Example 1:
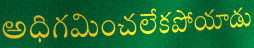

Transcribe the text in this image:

అధిగమించలేకపోయాడు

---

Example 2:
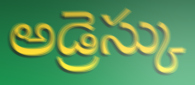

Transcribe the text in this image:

అడ్రెస్కు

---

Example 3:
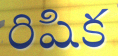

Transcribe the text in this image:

రిషిక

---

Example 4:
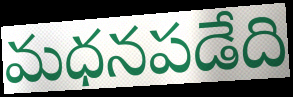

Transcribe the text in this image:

మధనపడేది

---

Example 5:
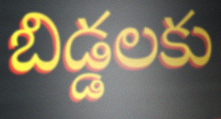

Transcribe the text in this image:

బిడ్డలకు